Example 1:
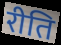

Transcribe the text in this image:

रीति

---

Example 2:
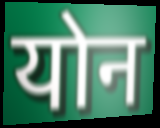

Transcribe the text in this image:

योन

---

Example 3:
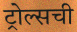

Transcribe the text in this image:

ट्रोल्सची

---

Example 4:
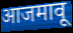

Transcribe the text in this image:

आजमावू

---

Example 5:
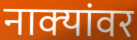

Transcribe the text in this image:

नाक्यांवर